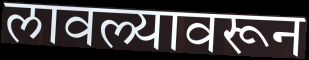
लावल्यावरून